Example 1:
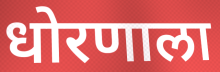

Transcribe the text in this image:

धोरणाला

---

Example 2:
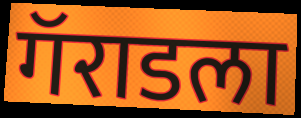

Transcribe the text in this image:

गॅराडला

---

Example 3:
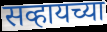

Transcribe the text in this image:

सव्हायच्या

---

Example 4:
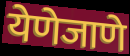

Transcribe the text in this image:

येणेजाणे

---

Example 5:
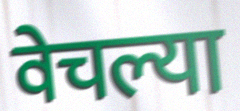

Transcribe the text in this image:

वेचल्या